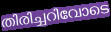
തിരിച്ചറിവോടെ